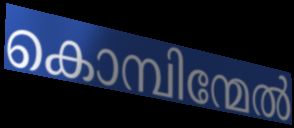
കൊമ്പിന്മേൽ